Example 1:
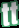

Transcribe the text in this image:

tt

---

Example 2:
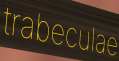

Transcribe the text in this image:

trabeculae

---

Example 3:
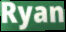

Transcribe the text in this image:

Ryan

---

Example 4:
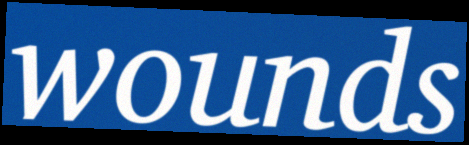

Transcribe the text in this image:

wounds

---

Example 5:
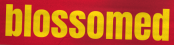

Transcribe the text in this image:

blossomed